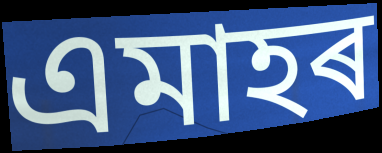
এমাহৰ